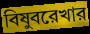
বিষুবরেখার